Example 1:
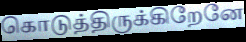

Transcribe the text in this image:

கொடுத்திருக்கிறேனே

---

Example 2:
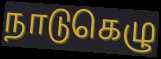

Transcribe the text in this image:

நாடுகெழு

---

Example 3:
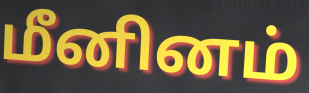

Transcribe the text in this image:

மீனினம்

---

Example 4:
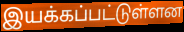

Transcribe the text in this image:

இயக்கப்பட்டுள்ளன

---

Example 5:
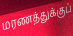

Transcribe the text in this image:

மரணத்துக்குப்